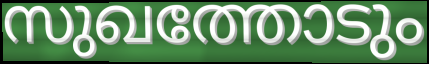
സുഖത്തോടും